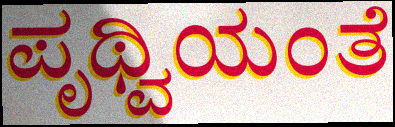
ಪೃಥ್ವಿಯಂತೆ